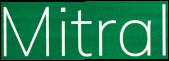
Mitral